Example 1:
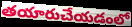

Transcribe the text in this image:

తయారుచేయడంలో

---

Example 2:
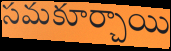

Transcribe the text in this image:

సమకూర్చాయి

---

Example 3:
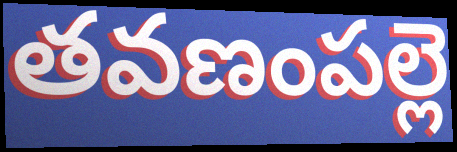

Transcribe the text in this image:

తవణంపల్లె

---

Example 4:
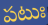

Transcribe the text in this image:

పటుః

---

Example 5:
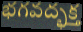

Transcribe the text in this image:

భగవద్భక్త